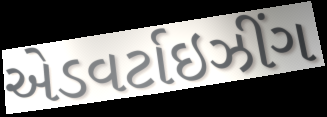
એડવર્ટાઇઝીંગ